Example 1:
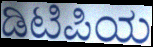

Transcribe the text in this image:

ಡಿಟಿಪಿಯ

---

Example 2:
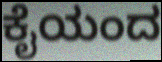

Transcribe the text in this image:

ಕೈಯಂದ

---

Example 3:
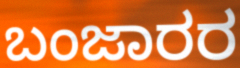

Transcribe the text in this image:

ಬಂಜಾರರ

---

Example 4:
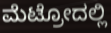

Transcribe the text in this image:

ಮೆಟ್ರೋದಲ್ಲಿ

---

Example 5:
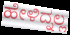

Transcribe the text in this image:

ಹೇಳಿದ್ನಲ್ಲ